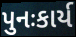
પુનઃકાર્ય